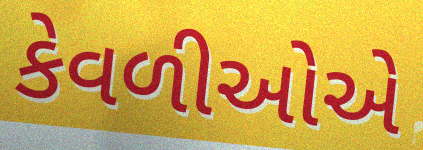
કેવળીઓએ